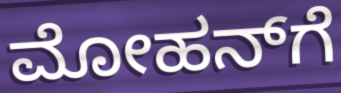
ಮೋಹನ್‌ಗೆ